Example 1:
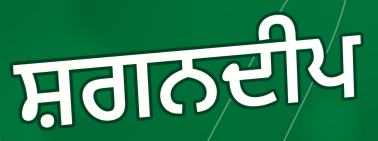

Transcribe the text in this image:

ਸ਼ਗਨਦੀਪ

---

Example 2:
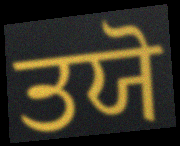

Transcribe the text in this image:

ਤਯੋ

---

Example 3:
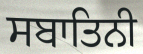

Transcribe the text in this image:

ਸਬਾਤਿਨੀ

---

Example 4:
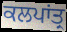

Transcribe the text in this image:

ਕਲਪਾਂਤ੍ਰ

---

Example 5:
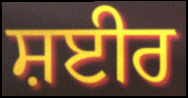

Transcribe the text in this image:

ਸ਼ਈਰ